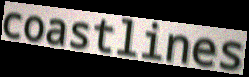
coastlines